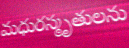
మధురస్మృతులను